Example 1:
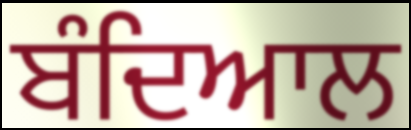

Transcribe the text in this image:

ਬੰਦਿਆਲ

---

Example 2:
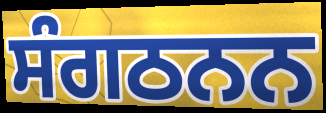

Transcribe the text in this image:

ਸੰਗਠਨਨ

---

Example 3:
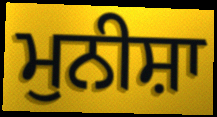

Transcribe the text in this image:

ਮੁਨੀਸ਼ਾ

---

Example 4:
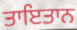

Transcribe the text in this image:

ਤਾਇਤਾਨ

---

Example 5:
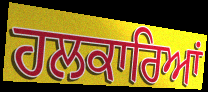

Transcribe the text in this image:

ਹਲਕਾਰਿਆਂ